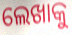
ଲେଖାକୁ